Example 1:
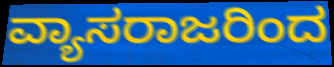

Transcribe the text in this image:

ವ್ಯಾಸರಾಜರಿಂದ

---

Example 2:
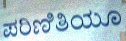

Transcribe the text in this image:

ಪರಿಣಿತಿಯೂ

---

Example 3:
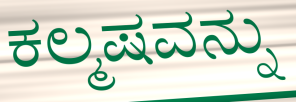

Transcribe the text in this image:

ಕಲ್ಮಷವನ್ನು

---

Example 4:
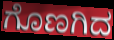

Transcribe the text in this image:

ಗೊಣಗಿದ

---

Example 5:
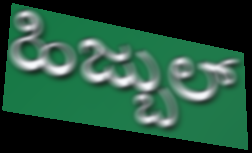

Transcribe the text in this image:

ಹಿಜ್ಬುಲ್